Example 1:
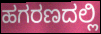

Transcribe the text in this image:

ಹಗರಣದಲ್ಲಿ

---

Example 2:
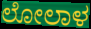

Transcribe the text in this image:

ಲೋಲಾಳ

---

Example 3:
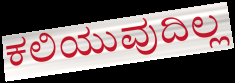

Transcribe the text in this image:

ಕಲಿಯುವುದಿಲ್ಲ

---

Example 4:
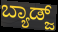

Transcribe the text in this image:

ಬ್ಯಾಡ್ಜ್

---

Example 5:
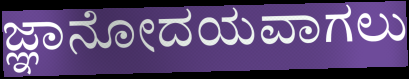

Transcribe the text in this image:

ಜ್ಞಾನೋದಯವಾಗಲು